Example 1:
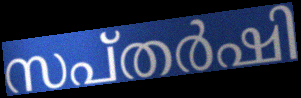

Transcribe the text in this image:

സപ്തർഷി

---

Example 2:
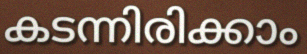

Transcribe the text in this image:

കടന്നിരിക്കാം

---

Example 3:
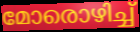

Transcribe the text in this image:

മോരൊഴിച്ച്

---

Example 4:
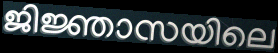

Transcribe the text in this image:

ജിജ്ഞാസയിലെ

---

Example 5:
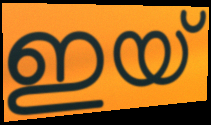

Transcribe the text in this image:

ഇയ്